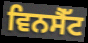
ਵਿਨਸੈੱਟ